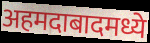
अहमदाबादमध्ये